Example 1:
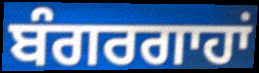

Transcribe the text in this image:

ਬੰਗਰਗਾਹਾਂ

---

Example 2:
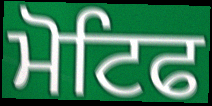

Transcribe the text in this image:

ਮੋਟਿਫ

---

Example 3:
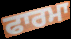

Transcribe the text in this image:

ਫਾਰਮਾ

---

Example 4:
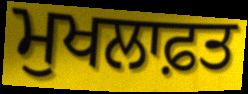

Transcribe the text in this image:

ਮੁਖਲਾਫ਼ਤ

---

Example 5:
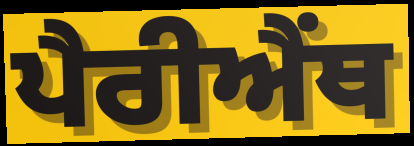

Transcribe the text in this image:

ਪੈਰੀਐਂਥ